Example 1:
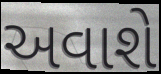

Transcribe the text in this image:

અવાશે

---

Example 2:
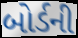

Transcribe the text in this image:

બોર્ડની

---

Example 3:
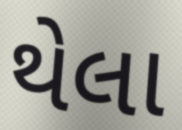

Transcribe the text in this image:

થેલા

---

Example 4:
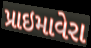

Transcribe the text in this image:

પ્રાઇમાવેરા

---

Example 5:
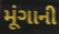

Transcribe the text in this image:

મૂંગાની